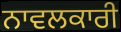
ਨਾਵਲਕਾਰੀ